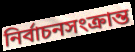
নির্বাচনসংক্রান্ত